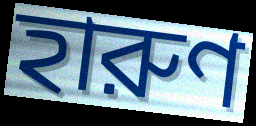
হারুণ